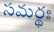
సమర్థః